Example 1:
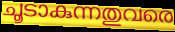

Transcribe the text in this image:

ചൂടാകുന്നതുവരെ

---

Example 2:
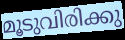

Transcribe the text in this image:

മൂടുവിരിക്കു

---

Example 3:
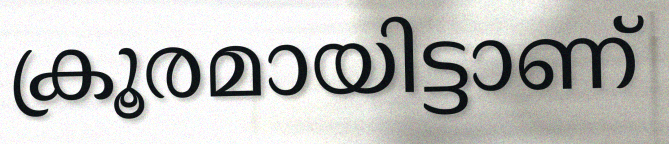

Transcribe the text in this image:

ക്രൂരമായിട്ടാണ്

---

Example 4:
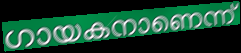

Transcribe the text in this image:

ഗായകനാണെന്ന്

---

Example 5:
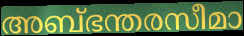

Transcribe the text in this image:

അബ്ഭന്തരസീമാ